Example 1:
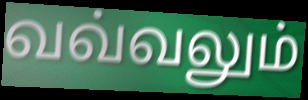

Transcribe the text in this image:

வவ்வலும்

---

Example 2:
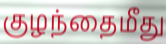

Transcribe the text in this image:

குழந்தைமீது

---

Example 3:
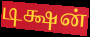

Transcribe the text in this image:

டிக்ஷன்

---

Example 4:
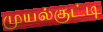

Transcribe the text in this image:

முயல்குட்டி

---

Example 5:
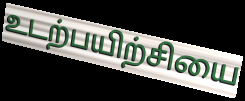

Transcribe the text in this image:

உடற்பயிற்சியை